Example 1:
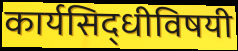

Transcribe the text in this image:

कार्यसिद्धीविषयी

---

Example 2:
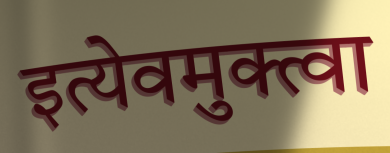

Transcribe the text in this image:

इत्येवमुक्त्वा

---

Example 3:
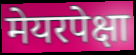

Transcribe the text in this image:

मेयरपेक्षा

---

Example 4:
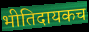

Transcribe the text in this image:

भीतिदायकच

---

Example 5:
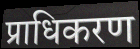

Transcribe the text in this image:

प्राधिकरण